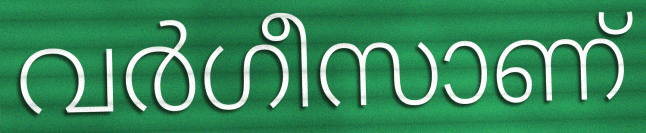
വർഗീസാണ്